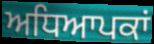
ਅਧਿਆਪਕਾਂ